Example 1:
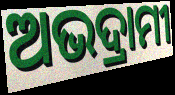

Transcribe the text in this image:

ଅଭଦ୍ରାମୀ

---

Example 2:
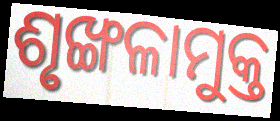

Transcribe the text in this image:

ଶୃଙ୍ଖଳାମୁକ୍ତ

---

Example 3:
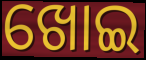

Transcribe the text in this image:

ଖୋଇ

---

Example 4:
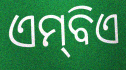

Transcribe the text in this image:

ଏମ୍‌ବିଏ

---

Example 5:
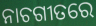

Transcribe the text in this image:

ନାଚଗୀତରେ